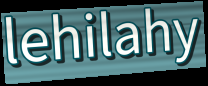
lehilahy